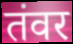
तंवर